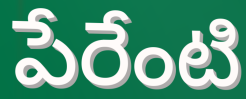
పేరేంటి